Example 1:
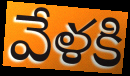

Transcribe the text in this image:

వేళకి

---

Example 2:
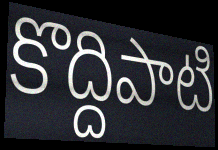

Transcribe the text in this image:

కొద్దిపాటి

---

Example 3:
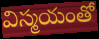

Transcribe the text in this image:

విస్మయంతో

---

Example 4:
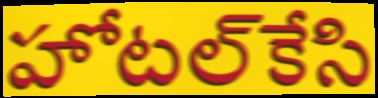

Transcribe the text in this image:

హోటల్‌కేసి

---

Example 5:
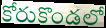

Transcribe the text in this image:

కోరుకొండలో